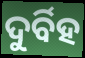
ଦୁର୍ବିହ